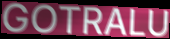
GOTRALU